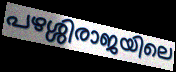
പഴശ്ശിരാജയിലെ